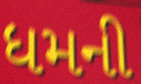
ધમની